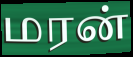
மரன்